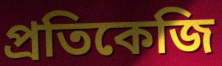
প্রতিকেজি